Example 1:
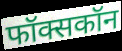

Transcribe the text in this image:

फॉक्सकॉन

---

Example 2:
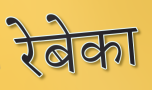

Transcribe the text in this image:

रेबेका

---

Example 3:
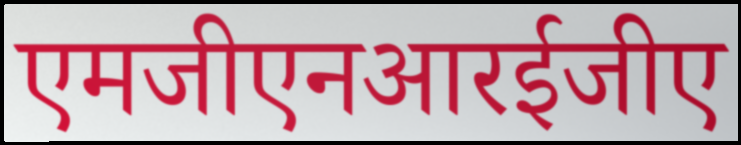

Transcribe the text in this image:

एमजीएनआरईजीए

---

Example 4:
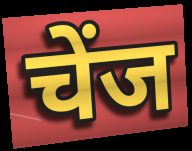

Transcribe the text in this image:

चेंज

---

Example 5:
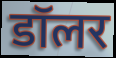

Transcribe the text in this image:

डॉलर